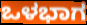
ಒಳಭಾಗ